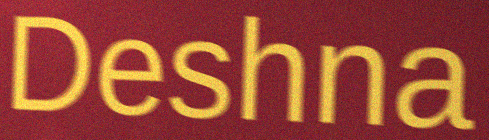
Deshna